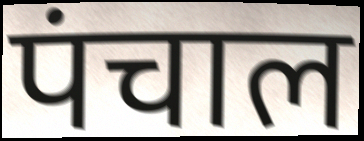
पंचाल